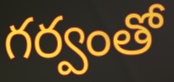
గర్వంతో